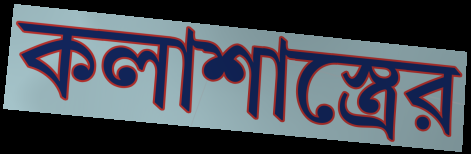
কলাশাস্ত্রের